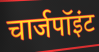
चार्जपॉइंट